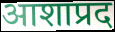
आशाप्रद